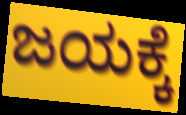
ಜಯಕ್ಕೆ